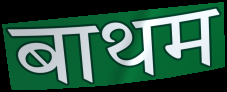
बाथम